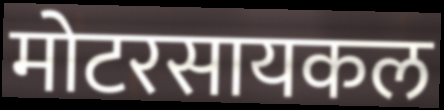
मोटरसायकल